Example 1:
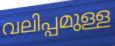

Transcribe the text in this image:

വലിപ്പമുള്ള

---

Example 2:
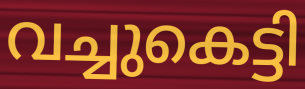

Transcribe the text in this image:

വച്ചുകെട്ടി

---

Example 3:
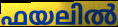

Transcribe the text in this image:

ഫയലിൽ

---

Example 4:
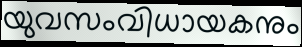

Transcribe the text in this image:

യുവസംവിധായകനും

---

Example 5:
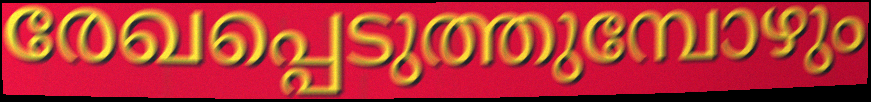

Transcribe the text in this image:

രേഖപ്പെടുത്തുമ്പോഴും